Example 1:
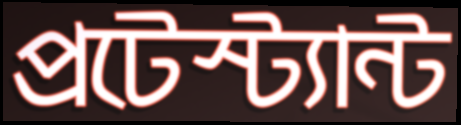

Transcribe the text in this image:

প্রটেস্ট্যান্ট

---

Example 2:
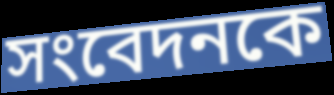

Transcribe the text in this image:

সংবেদনকে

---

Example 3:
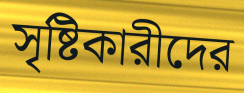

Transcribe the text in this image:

সৃষ্টিকারীদের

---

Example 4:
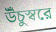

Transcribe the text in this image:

উঁচুস্বরে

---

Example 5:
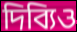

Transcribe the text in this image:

দিব্যিও